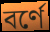
বর্ণে